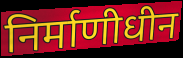
निर्माणीधीन